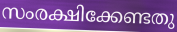
സംരക്ഷിക്കേണ്ടതു